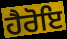
ਹੈਰੋਇ